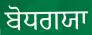
ਬੋਧਗਯਾ